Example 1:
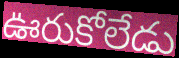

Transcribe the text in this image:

ఊరుకోలేడు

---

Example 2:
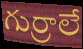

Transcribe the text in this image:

గుర్రాలే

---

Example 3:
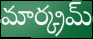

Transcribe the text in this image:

మార్క్రమ్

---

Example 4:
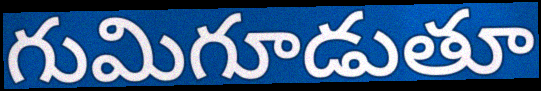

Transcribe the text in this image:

గుమిగూడుతూ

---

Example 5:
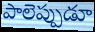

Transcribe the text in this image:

పాలెప్పుడూ